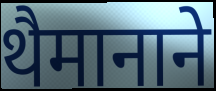
थैमानाने